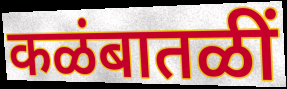
कळंबातळीं